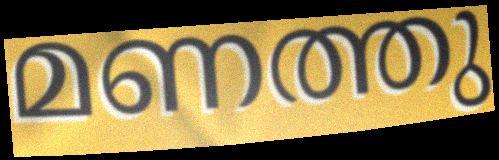
മണത്തു